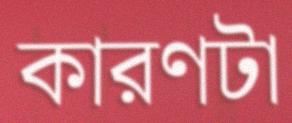
কারণটা